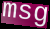
msg